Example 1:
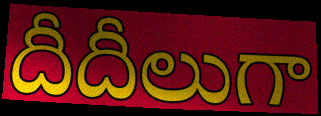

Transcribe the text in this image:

దీదీలుగా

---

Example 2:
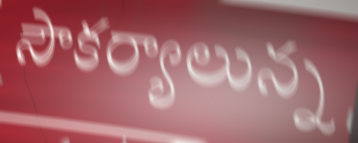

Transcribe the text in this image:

సౌకర్యాలున్న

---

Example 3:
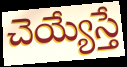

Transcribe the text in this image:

చెయ్యేస్తే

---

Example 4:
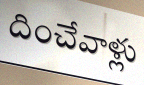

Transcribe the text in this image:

దించేవాళ్లు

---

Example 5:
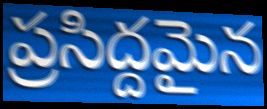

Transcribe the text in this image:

ప్రసిద్దమైన